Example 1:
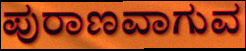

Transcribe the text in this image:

ಪುರಾಣವಾಗುವ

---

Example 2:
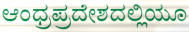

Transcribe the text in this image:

ಆಂಧ್ರಪ್ರದೇಶದಲ್ಲಿಯೂ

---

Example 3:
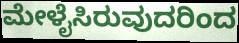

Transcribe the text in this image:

ಮೇಳೈಸಿರುವುದರಿಂದ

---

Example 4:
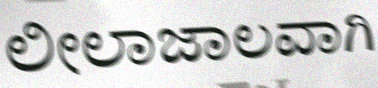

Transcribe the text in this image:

ಲೀಲಾಜಾಲವಾಗಿ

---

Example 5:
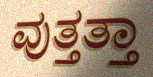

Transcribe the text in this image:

ವುತ್ತತ್ತಾ